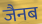
जैनब